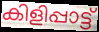
കിളിപ്പാട്ട്